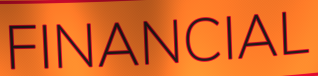
FINANCIAL